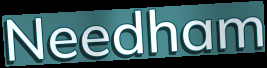
Needham